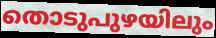
തൊടുപുഴയിലും